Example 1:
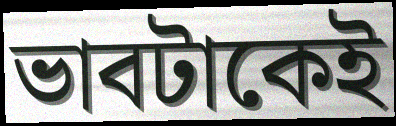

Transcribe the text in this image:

ভাবটাকেই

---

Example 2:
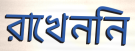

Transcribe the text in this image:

রাখেননি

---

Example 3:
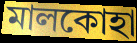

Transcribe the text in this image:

মালকোহা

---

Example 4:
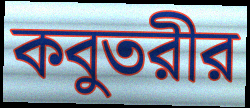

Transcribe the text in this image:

কবুতরীর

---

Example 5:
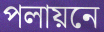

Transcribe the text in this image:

পলায়নে